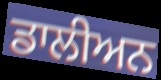
ਡਾਲੀਅਨ